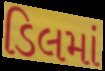
ડિલમાં